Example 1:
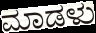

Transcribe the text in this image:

ಮಾಡಳು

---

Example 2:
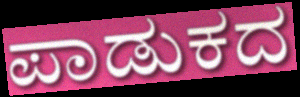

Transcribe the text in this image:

ಪಾಡುಕದ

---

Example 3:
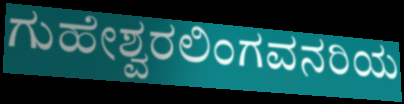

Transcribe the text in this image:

ಗುಹೇಶ್ವರಲಿಂಗವನರಿಯ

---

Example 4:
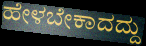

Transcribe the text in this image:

ಹೇಳಬೇಕಾದದ್ದು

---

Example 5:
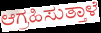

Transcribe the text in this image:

ಆಗ್ರಹಿಸುತ್ತಾಳೆ